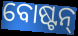
ବୋଷ୍ଟନ୍